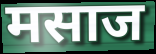
मसाज